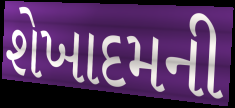
શેખાદમની